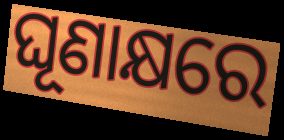
ଘୂଣାକ୍ଷରେ